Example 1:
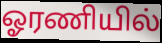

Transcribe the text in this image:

ஓரணியில்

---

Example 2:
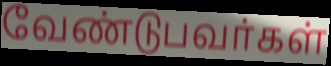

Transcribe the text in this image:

வேண்டுபவர்கள்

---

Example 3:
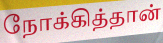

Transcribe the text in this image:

நோக்கித்தான்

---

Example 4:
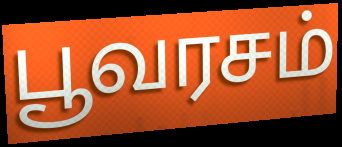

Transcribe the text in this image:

பூவரசம்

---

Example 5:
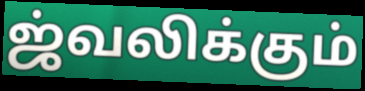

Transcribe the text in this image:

ஜ்வலிக்கும்